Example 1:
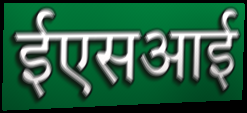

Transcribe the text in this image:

ईएसआई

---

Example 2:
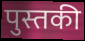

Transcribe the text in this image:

पुस्तकी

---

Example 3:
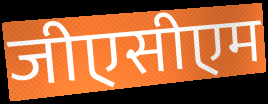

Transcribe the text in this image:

जीएसीएम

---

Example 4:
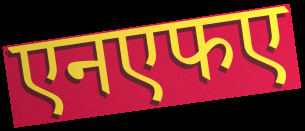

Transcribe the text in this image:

एनएफए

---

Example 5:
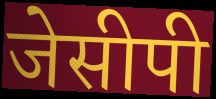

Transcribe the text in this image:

जेसीपी